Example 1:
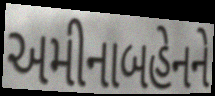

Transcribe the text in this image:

અમીનાબહેનને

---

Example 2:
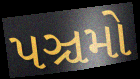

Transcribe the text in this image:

પઞ્ચમો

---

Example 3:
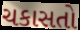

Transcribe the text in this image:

ચકાસતો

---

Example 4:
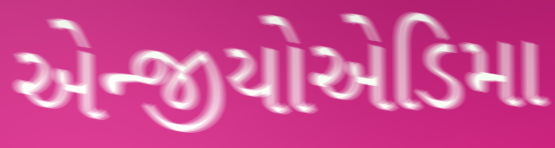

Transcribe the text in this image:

એન્જીયોએડિમા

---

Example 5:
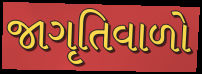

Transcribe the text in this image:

જાગૃતિવાળો